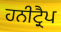
ਹਨੀਟ੍ਰੈਪ